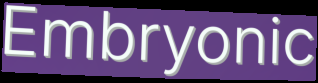
Embryonic